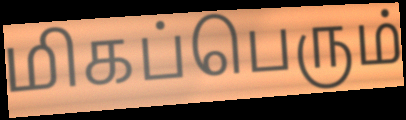
மிகப்பெரும்